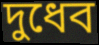
দুধেব